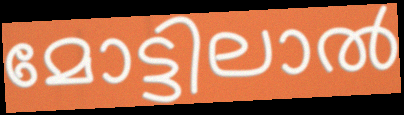
മോട്ടിലാൽ